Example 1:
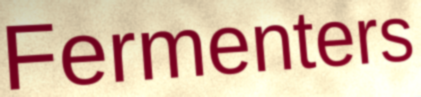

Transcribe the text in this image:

Fermenters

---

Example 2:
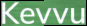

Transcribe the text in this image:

Kevvu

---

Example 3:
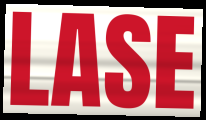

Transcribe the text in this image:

LASE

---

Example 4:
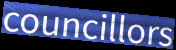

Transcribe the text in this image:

councillors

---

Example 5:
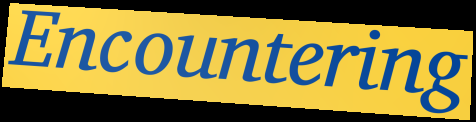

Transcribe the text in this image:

Encountering